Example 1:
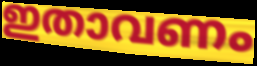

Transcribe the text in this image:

ഇതാവണം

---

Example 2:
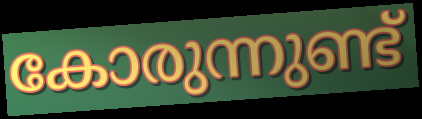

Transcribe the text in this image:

കോരുന്നുണ്ട്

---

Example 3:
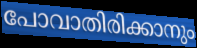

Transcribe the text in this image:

പോവാതിരിക്കാനും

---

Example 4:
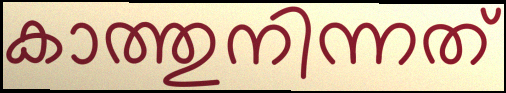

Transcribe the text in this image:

കാത്തുനിന്നത്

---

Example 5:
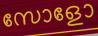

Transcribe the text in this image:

സോളോ